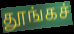
தூங்கச்